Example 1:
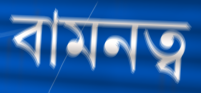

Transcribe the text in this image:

বামনত্ব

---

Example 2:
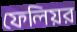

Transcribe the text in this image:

ফেলিয়র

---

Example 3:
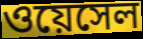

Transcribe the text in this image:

ওয়েসেল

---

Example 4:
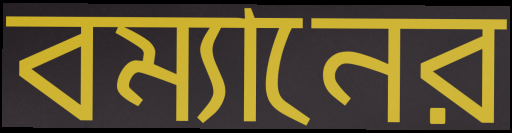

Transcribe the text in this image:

বম্যানের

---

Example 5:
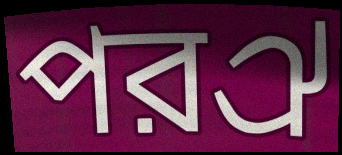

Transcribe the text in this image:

পরঐ